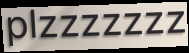
plzzzzzzz